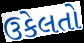
ઉકેલતો